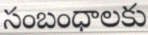
సంబంధాలకు